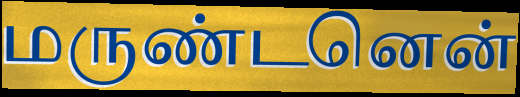
மருண்டனென்